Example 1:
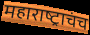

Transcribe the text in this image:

महाराष्ट्राचंच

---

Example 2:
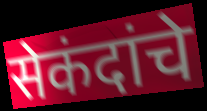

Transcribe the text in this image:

सेकंदांचे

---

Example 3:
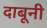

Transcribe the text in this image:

दाबूनी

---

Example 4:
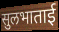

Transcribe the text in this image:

सुलभाताई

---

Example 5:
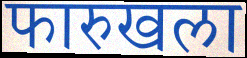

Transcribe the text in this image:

फारुखला